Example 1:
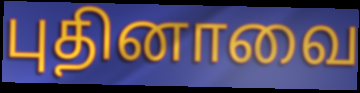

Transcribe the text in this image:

புதினாவை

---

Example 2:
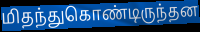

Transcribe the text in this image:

மிதந்துகொண்டிருந்தன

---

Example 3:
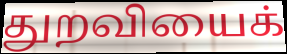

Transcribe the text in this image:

துறவியைக்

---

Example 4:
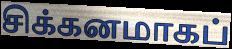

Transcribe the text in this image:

சிக்கனமாகப்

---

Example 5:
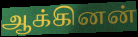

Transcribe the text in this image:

ஆக்கினன்